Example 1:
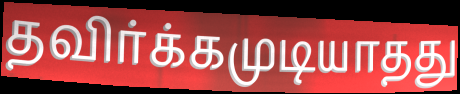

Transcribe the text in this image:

தவிர்க்கமுடியாதது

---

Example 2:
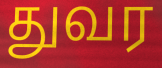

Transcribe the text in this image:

துவர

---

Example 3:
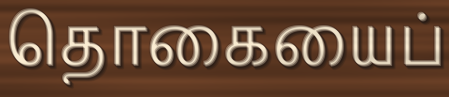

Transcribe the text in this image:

தொகையைப்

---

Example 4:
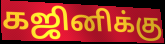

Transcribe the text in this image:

கஜினிக்கு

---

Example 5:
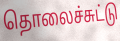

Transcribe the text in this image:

தொலைச்சுட்டு